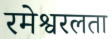
रमेश्वरलता